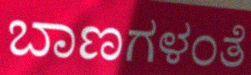
ಬಾಣಗಳಂತೆ